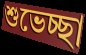
শুভেচ্ছা